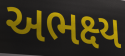
અભક્ષ્ય